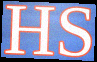
HS